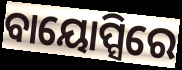
ବାୟୋପ୍ସିରେ